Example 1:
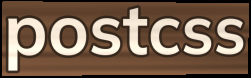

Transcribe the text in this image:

postcss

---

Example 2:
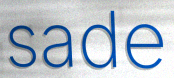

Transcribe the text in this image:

sade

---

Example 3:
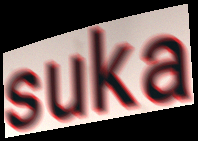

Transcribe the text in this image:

suka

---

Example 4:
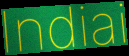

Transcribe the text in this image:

Indiai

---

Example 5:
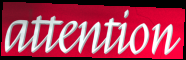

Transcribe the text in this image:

attention